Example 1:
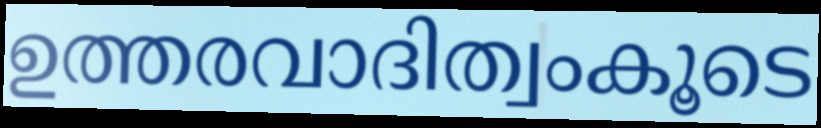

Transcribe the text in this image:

ഉത്തരവാദിത്വംകൂടെ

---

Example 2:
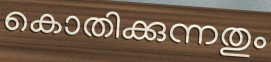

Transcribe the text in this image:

കൊതിക്കുന്നതും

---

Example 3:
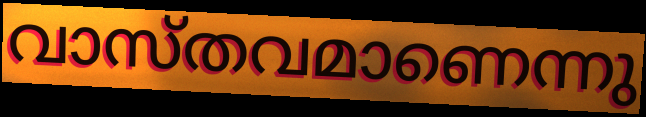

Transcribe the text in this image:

വാസ്തവമാണെന്നു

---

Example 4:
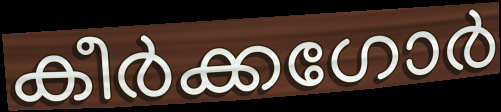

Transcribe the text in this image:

കീർക്കഗോർ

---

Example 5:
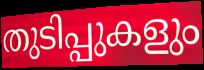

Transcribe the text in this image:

തുടിപ്പുകളും